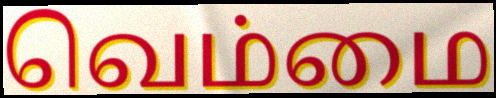
வெம்மை